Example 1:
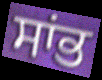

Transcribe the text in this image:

ਸਾਂਭ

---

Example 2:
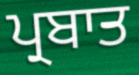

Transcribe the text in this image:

ਪ੍ਰਬਾਤ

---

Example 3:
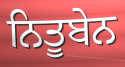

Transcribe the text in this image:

ਨਿਤੂਬੇਨ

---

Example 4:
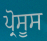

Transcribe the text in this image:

ਪ੍ਰੋਸੂਸ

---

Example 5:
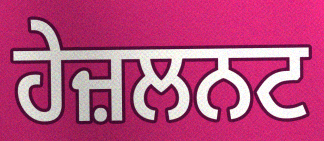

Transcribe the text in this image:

ਹੇਜ਼ਲਨਟ